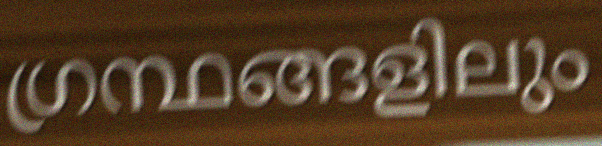
ഗ്രന്ഥങ്ങളിലും